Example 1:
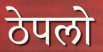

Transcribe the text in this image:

ठेपलो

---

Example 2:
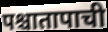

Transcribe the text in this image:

पश्चातापाची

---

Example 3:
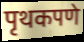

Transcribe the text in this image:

पृथकपणे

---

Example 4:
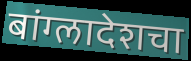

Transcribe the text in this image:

बांग्लादेशचा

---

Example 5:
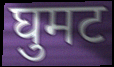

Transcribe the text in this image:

घुमट